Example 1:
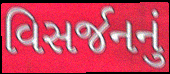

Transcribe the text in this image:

વિસર્જનનું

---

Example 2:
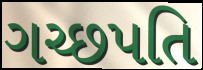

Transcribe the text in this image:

ગચ્છપતિ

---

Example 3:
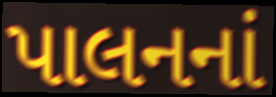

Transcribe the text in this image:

પાલનનાં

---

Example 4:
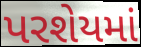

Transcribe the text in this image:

પરશેયમાં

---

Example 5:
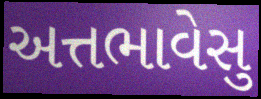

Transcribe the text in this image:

અત્તભાવેસુ